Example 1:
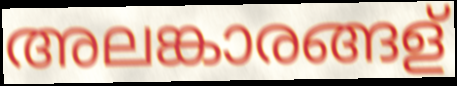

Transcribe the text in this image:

അലങ്കാരങ്ങള്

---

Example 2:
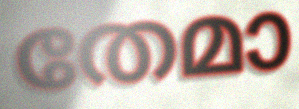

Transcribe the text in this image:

തേമാ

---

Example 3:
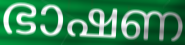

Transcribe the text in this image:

ഭാഷണ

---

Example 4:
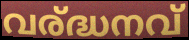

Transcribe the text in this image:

വര്ദ്ധനവ്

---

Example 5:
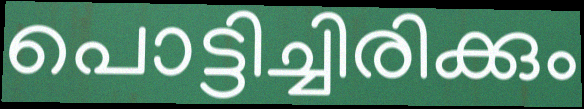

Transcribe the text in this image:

പൊട്ടിച്ചിരിക്കും